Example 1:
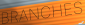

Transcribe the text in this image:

BRANCHES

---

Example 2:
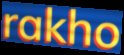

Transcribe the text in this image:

rakho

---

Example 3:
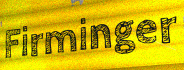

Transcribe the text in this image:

Firminger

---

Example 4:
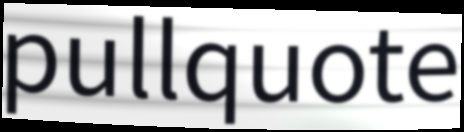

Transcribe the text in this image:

pullquote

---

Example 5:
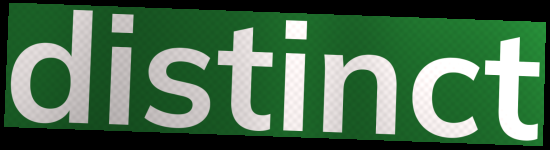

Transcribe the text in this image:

distinct